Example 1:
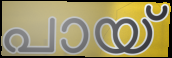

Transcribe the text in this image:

പായ്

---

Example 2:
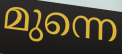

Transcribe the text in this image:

മുന്നെ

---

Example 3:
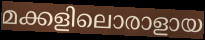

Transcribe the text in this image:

മക്കളിലൊരാളായ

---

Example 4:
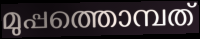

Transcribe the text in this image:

മുപ്പത്തൊമ്പത്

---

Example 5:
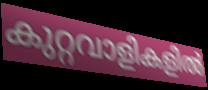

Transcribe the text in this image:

കുറ്റവാളികളിൽ